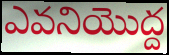
ఎవనియొద్ద